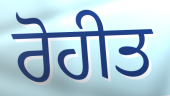
ਰੋਹੀਤ